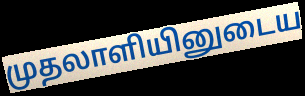
முதலாளியினுடைய